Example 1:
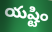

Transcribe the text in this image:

యష్టిం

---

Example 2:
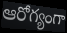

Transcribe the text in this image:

ఆరోగ్యంగా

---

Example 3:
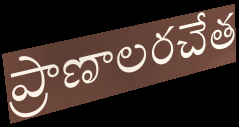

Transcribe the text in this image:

ప్రాణాలరచేత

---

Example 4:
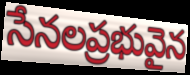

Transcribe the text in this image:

సేనలప్రభువైన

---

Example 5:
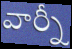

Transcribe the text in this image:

వార్నీ